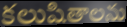
కలుషితాలను